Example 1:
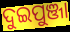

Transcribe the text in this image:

ଦୁଇପୁଞ୍ଜା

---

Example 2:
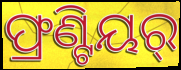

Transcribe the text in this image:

ଫ୍ରଣ୍ଟିୟର୍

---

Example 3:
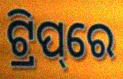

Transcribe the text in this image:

ଟ୍ରିପ୍‌ରେ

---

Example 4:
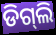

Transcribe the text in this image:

ଡିଗ୍‌ଲି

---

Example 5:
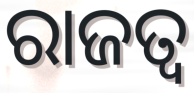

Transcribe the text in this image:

ରାଜତ୍ଵ